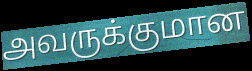
அவருக்குமான